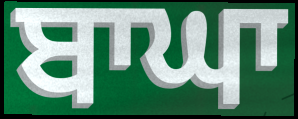
ਬਾਘਾ